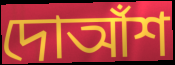
দোআঁশ